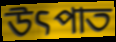
উৎপাত